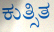
ಕುತ್ಸಿತ